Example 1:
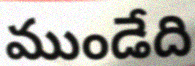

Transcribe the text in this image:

ముండేది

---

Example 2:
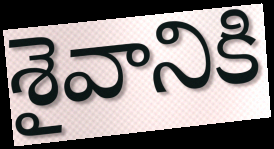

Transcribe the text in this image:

శైవానికి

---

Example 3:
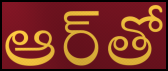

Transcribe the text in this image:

ఆర్‌తో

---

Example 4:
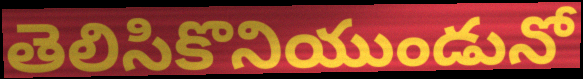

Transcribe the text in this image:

తెలిసికొనియుండునో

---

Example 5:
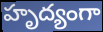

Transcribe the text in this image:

హృద్యంగా